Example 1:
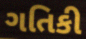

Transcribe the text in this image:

ગતિકી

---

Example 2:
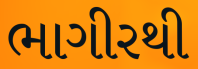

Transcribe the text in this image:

ભાગીરથી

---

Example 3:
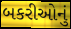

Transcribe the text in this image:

બકરીઓનું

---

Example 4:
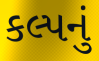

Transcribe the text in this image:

કલ્પનું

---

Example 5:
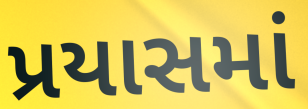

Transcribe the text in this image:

પ્રયાસમાં